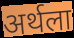
अर्थला